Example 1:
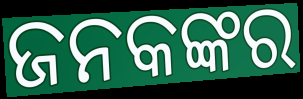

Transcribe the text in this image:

ଜନକଙ୍କର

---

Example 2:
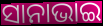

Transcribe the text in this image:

ସାନାଭାଇ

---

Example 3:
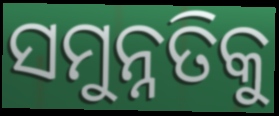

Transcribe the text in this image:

ସମୁନ୍ନତିକୁ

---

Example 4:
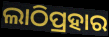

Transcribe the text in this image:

ଲାଠିପ୍ରହାର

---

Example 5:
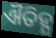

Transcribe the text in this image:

ଐତିହ୍ଯ